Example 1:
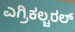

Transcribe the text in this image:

ಎಗ್ರಿಕಲ್ಚರಲ್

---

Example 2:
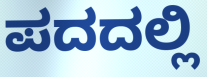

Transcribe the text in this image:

ಪದದಲ್ಲಿ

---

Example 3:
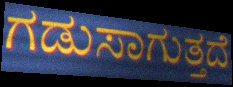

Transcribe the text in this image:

ಗಡುಸಾಗುತ್ತದೆ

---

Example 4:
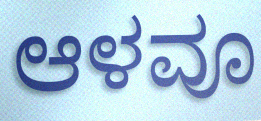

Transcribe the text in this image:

ಆಳವೂ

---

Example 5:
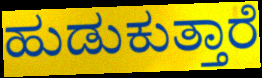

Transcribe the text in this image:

ಹುಡುಕುತ್ತಾರೆ